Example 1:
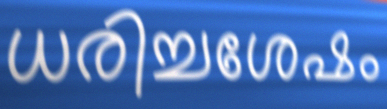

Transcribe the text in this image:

ധരിച്ചശേഷം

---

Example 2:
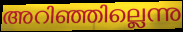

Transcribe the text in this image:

അറിഞ്ഞില്ലെന്നു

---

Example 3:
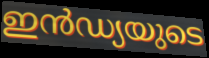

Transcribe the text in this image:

ഇൻഡ്യയുടെ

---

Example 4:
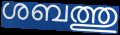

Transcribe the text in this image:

ശബത്തു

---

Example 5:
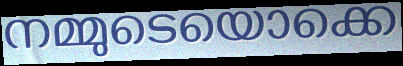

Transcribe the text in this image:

നമ്മുടെയൊക്കെ